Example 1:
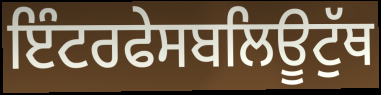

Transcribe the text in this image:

ਇੰਟਰਫੇਸਬਲਿਊਟੁੱਥ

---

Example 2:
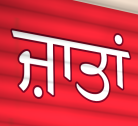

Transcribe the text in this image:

ਜ਼ਾਤਾਂ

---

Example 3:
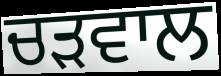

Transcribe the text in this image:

ਚੜਵਾਲ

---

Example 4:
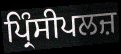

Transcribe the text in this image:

ਪ੍ਰਿੰਸੀਪਲਜ਼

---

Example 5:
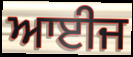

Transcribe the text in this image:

ਆਈਜ